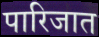
पारिजात